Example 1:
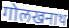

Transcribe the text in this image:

गोलखनाथ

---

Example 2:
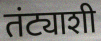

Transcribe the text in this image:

तंट्याशी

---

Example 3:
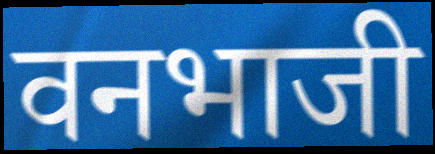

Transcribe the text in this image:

वनभाजी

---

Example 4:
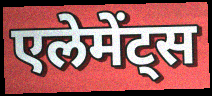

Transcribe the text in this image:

एलेमेंट्स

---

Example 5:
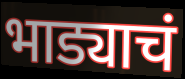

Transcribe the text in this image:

भाड्याचं